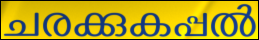
ചരക്കുകപ്പൽ